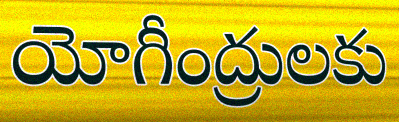
యోగీంద్రులకు